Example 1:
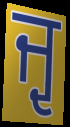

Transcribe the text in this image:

ਜ੍ਦ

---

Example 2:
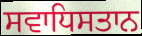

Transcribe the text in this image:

ਸਵਾਧਿਸਤਾਨ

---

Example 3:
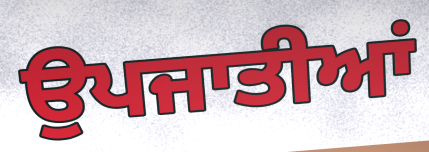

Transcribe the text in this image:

ਉਪਜਾਤੀਆਂ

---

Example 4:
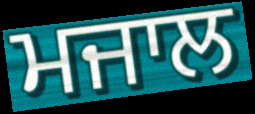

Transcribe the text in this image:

ਮਜਾਲ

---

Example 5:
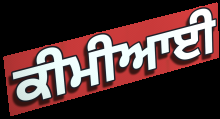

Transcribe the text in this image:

ਕੀਮੀਆਈ